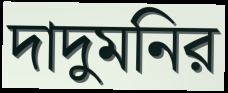
দাদুমনির